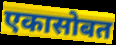
एकासोबत